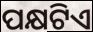
ପକ୍ଷଟିଏ